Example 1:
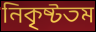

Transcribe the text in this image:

নিকৃষ্টতম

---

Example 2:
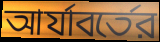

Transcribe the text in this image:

আর্যাবর্তের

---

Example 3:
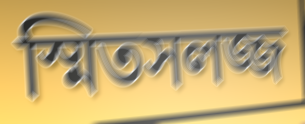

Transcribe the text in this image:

স্মিতসলজ্জ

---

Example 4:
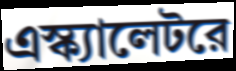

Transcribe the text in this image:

এস্ক্যালেটরে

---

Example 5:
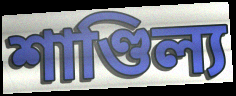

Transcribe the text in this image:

শাণ্ডিল্য